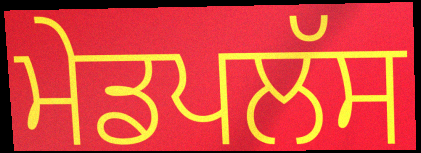
ਮੇਡਪਲੱਸ